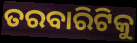
ତରବାରିଟିକୁ